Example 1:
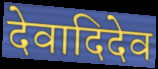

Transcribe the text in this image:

देवादिदेव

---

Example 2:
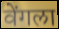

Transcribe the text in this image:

वेंगला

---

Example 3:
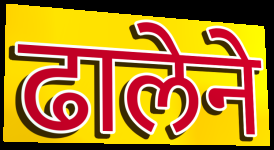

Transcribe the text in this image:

ढालेने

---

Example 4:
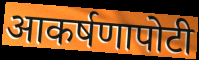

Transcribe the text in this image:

आकर्षणापोटी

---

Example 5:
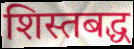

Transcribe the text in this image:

शिस्तबद्ध